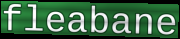
fleabane